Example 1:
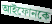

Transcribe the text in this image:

আইফোনকে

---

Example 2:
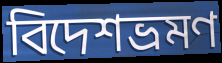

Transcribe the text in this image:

বিদেশভ্রমণ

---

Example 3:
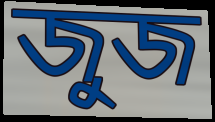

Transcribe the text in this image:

জুজ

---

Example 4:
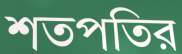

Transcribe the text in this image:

শতপতির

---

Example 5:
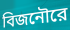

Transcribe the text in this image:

বিজনৌরে